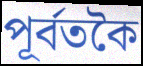
পূৰ্বতকৈ